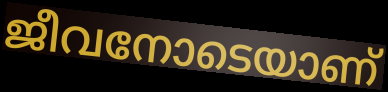
ജീവനോടെയാണ്